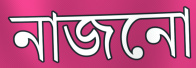
নাজনো